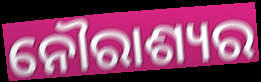
ନୌରାଶ୍ୟର